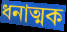
ধনাত্মক